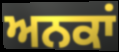
ਅਨਕਾਂ